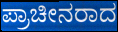
ಪ್ರಾಚೀನರಾದ